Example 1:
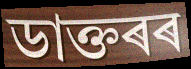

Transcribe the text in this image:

ডাক্তৰৰ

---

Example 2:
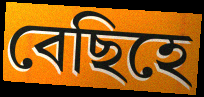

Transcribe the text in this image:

বেছিহে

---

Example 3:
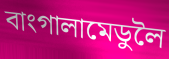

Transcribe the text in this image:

বাংগালামেডুলৈ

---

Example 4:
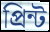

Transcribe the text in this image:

প্ৰিন্ট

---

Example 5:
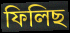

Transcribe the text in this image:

ফিলিছ